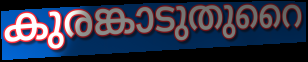
കുരങ്കാടുതുറൈ